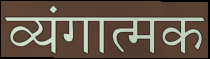
व्यंगात्मक